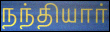
நந்தியார்